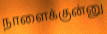
நாளைக்குன்னு